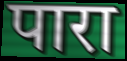
पारा